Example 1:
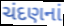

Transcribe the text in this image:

ચંદણનાં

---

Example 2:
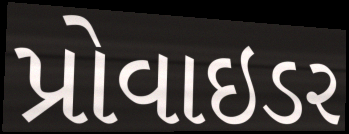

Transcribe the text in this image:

પ્રોવાઇડર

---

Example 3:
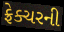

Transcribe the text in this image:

ફ્રેક્ચરની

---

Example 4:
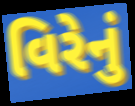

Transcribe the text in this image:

વિરેનું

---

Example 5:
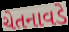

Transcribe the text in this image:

ચેતનાવડે